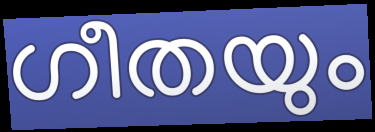
ഗീതയും